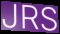
JRS